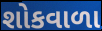
શોકવાળા